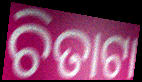
ଚିତାଟା